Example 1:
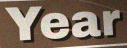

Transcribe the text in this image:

Year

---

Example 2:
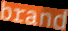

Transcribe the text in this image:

brand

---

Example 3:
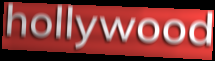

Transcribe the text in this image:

hollywood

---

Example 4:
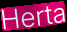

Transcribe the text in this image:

Herta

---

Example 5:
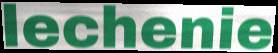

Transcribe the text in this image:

lechenie